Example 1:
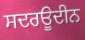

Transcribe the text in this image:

ਸਦਰਊਦੀਨ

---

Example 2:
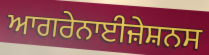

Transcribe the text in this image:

ਆਗਰੇਨਾਈਜ਼ੇਸ਼ਨਸ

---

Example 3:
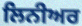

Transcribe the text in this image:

ਲਿਨੀਅਰ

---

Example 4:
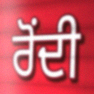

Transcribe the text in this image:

ਰੋਂਦੀ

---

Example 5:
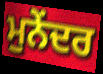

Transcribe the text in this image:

ਮੁਨੇਂਦਰ